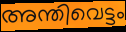
അന്തിവെട്ടം